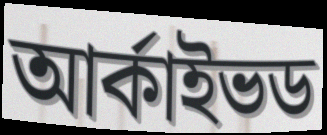
আর্কাইভড